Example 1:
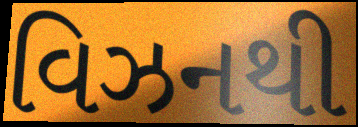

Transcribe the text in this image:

વિઝનથી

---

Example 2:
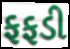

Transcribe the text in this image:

ફફડી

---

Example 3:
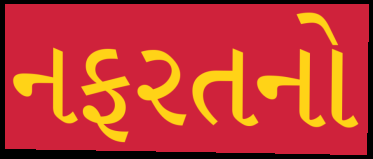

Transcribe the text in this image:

નફરતનો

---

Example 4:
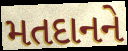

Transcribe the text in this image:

મતદાનને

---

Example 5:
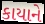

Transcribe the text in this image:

કાયાને